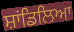
ਸ਼ਾਂਡਿਲਿਆ